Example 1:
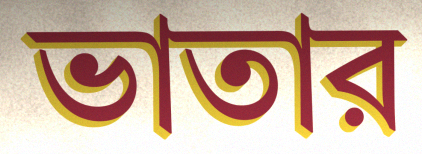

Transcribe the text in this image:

ভাতার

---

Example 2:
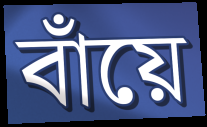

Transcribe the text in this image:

বাঁয়ে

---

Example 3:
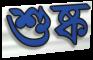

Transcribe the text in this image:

শুষ্ক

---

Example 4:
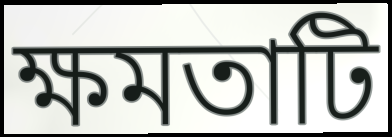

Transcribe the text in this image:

ক্ষমতাটি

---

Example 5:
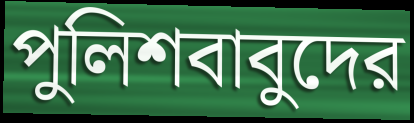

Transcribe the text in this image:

পুলিশবাবুদের